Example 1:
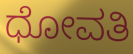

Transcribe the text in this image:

ಧೋವತಿ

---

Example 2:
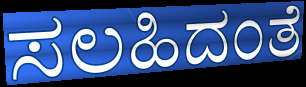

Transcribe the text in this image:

ಸಲಹಿದಂತೆ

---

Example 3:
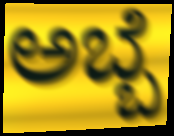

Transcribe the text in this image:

ಅಬ್ಬೆ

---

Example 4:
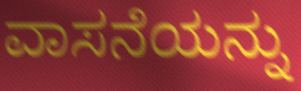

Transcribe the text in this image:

ವಾಸನೆಯನ್ನು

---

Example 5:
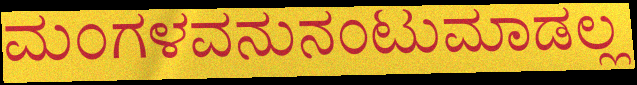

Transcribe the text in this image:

ಮಂಗಳವನುನಂಟುಮಾಡಲ್ಲ